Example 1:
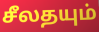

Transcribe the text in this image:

சீலதயும்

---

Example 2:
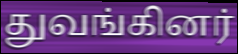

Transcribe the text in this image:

துவங்கினர்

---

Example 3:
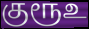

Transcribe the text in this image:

குரூஉ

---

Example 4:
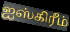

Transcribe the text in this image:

ஐஸ்கிரீம்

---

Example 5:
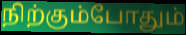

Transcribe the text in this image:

நிற்கும்போதும்